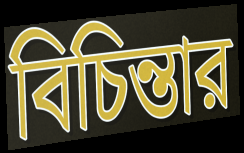
বিচিন্তার